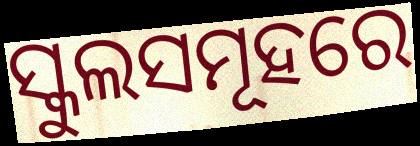
ସ୍କୁଲସମୂହରେ